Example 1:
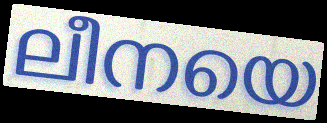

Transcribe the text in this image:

ലീനയെ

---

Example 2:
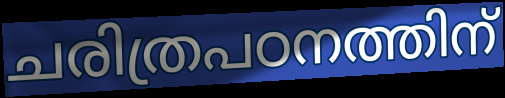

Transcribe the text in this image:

ചരിത്രപഠനത്തിന്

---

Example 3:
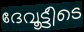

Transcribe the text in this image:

ദേവൂട്ടീടെ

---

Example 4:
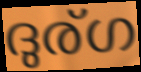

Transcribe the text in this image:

ദുര്ഗ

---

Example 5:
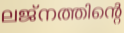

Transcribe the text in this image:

ലജ്നത്തിന്റെ